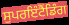
ਸੁਪਰਇੰਟੈਂਡਿੰਗ